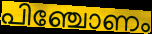
പിഞ്ചോണം